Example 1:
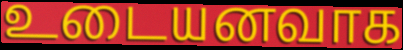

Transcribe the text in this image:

உடையனவாக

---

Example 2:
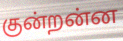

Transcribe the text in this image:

குன்றன்ன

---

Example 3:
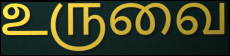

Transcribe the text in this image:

உருவை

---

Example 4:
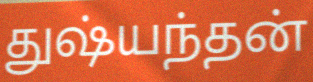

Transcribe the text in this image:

துஷ்யந்தன்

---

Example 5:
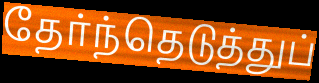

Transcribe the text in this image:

தேர்ந்தெடுத்துப்